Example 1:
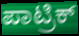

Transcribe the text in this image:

ಪಾಟ್ರಿಕ್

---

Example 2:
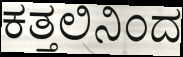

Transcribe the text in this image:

ಕತ್ತಲಿನಿಂದ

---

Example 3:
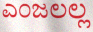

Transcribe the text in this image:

ಎಂಜಲಲ್ಲ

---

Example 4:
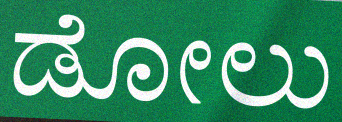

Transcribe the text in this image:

ಡೋಲು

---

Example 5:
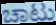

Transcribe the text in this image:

ಚಾಟು